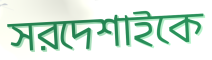
সরদেশাইকে